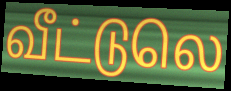
வீட்டுலெ